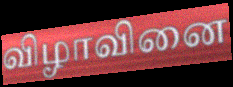
விழாவினை